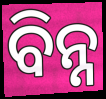
ବିନ୍ନ